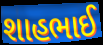
શાહભાઈ